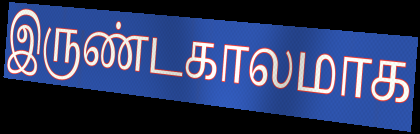
இருண்டகாலமாக